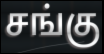
சங்கு